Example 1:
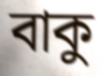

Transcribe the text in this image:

বাকু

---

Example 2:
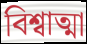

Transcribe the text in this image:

বিশ্বাত্মা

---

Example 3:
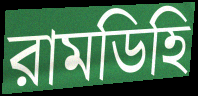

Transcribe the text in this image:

রামডিহি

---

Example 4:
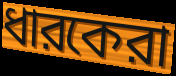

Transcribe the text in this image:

ধারকেরা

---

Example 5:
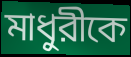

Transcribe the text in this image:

মাধুরীকে